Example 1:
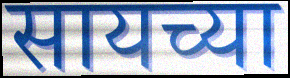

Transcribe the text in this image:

सायच्या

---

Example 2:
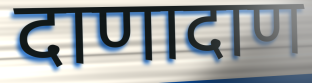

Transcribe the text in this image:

दाणादाण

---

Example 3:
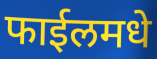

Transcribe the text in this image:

फाईलमधे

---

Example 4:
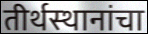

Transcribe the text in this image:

तीर्थस्थानांचा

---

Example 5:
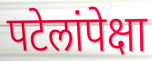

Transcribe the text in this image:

पटेलांपेक्षा